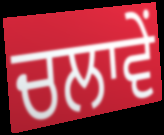
ਚਲਾਵੇਂ